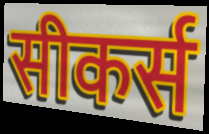
सीकर्स